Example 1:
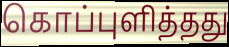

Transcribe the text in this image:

கொப்புளித்தது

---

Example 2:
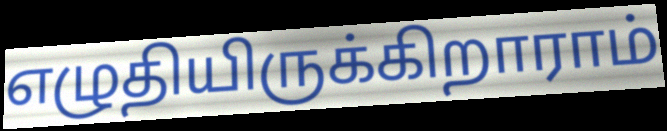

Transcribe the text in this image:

எழுதியிருக்கிறாராம்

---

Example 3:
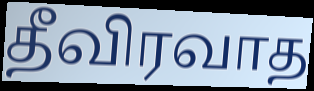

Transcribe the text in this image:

தீவிரவாத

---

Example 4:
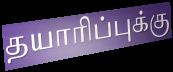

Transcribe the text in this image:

தயாரிப்புக்கு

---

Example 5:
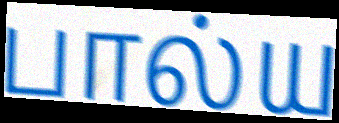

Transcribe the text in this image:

பால்ய